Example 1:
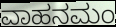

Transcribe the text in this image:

ವಾಹನಮಂ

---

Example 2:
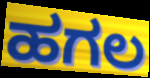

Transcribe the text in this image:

ಹಗಲ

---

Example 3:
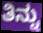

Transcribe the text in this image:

ತಿನ್ನು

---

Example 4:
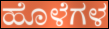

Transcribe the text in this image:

ಹೊಳೆಗಳ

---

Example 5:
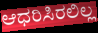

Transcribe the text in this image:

ಆಧರಿಸಿರಲಿಲ್ಲ